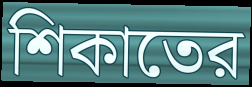
শিকাতের